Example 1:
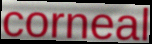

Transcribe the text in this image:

corneal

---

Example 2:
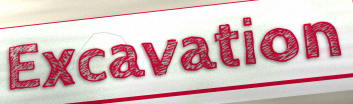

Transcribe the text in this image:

Excavation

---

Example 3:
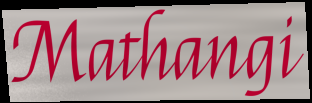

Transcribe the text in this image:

Mathangi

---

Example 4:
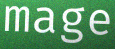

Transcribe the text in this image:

mage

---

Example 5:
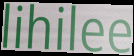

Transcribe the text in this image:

lihilee